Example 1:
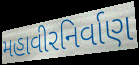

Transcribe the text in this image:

મહાવીરનિર્વાણ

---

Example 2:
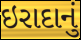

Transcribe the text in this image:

ઇરાદાનું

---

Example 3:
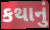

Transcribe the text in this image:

કથાનું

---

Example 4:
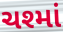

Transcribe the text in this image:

ચશ્માં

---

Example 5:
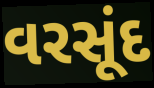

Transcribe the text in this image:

વરસૂંદ